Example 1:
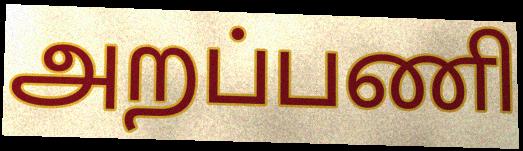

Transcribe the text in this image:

அறப்பணி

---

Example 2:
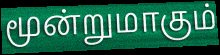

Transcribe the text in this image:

மூன்றுமாகும்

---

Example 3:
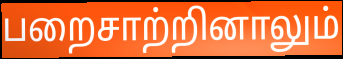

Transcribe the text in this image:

பறைசாற்றினாலும்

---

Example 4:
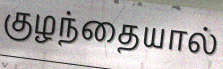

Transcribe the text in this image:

குழந்தையால்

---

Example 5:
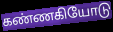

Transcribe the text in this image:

கண்ணகியோடு